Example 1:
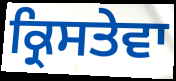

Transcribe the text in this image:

ਕ੍ਰਿਸਤੇਵਾ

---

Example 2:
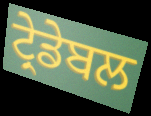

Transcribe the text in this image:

ਟ੍ਰੇਡੇਬਲ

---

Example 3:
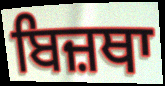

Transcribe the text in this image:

ਬਿਜ਼ਥਾ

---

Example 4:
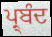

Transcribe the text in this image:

ਪ੍ਰ੍ਬੰਦ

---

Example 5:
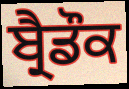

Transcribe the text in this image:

ਬ੍ਰੈਡੌਕ